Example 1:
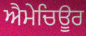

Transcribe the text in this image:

ਐਮੇਚਿਊਰ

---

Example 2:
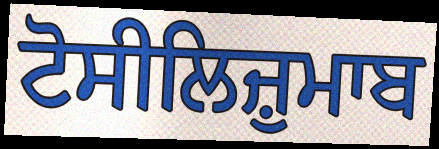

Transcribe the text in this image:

ਟੋਸੀਲਿਜ਼ੁਮਾਬ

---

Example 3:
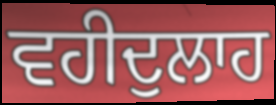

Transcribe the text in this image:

ਵਹੀਦੁਲਾਹ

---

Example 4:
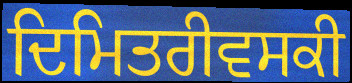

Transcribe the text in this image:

ਦਿਮਿਤਰੀਵਸਕੀ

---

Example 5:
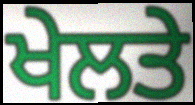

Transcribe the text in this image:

ਖੇਲਤੇ